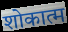
शोकात्म